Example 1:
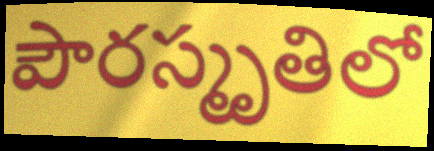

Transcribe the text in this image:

పౌరస్మృతిలో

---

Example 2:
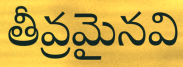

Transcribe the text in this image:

తీవ్రమైనవి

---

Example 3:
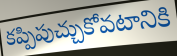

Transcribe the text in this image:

కప్పిపుచ్చుకోవటానికి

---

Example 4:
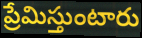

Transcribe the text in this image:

ప్రేమిస్తుంటారు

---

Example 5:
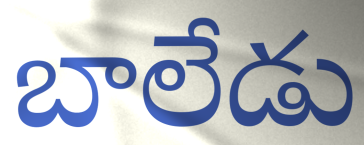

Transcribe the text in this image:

బాలేడు